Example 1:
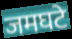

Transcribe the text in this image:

जमघटे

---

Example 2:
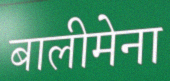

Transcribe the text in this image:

बालीमेना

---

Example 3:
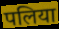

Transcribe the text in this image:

पलिया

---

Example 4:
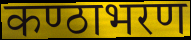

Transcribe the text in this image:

कण्ठाभरण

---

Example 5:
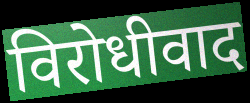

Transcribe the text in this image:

विरोधीवाद